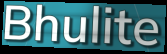
Bhulite